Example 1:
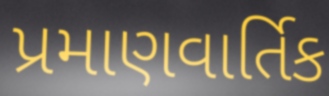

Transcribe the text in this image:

પ્રમાણવાર્તિક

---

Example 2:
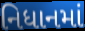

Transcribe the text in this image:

નિધાનમાં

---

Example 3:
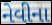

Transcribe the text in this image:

નેવીના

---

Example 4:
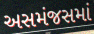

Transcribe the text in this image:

અસમંજસમાં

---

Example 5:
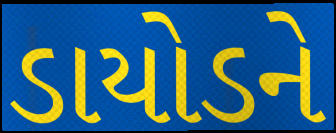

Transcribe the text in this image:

ડાયોડને